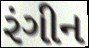
રંગીન